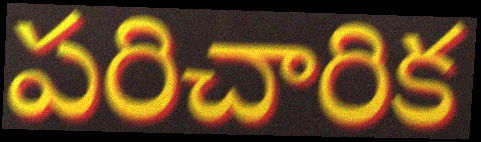
పరిచారిక